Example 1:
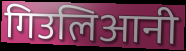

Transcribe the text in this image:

गिउलिआनी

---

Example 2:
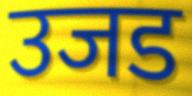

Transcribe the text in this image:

उजड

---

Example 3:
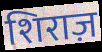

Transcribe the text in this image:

शिराज़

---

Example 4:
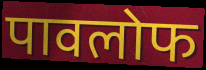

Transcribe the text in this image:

पावलोफ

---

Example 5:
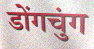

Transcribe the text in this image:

डोंगचुंग